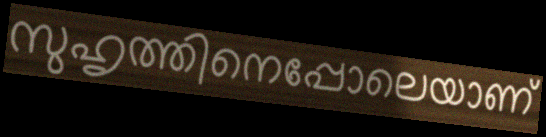
സുഹൃത്തിനെപ്പോലെയാണ്